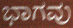
ಭಾಗವು